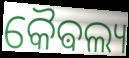
କୈଵଲ୍ୟ